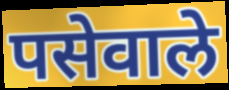
पसेवाले